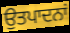
ਉਤਪਾਦਨਾਂ